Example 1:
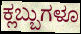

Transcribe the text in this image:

ಕ್ಲಬ್ಬುಗಳೂ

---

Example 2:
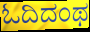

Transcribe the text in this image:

ಓದಿದಂಥ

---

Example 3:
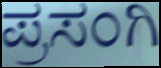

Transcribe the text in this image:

ಪ್ರಸಂಗಿ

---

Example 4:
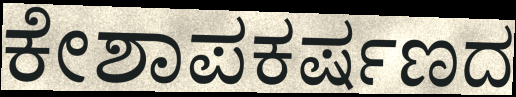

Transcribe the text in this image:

ಕೇಶಾಪಕರ್ಷಣದ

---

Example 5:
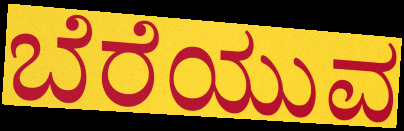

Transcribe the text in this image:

ಬೆರೆಯುವ